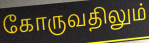
கோருவதிலும்